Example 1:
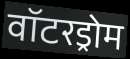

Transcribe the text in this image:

वॉटरड्रोम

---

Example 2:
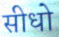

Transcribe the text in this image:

सीधो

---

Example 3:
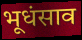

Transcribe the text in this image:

भूधंसाव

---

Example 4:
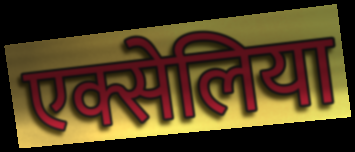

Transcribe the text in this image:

एक्सेलिया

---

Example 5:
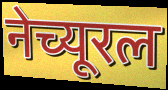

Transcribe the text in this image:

नेच्यूरल